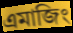
এমাজিং